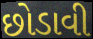
છોડાવી